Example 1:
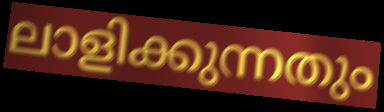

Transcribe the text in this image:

ലാളിക്കുന്നതും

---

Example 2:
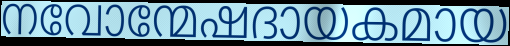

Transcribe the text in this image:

നവോന്മേഷദായകമായ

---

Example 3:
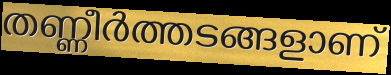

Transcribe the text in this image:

തണ്ണീർത്തടങ്ങളാണ്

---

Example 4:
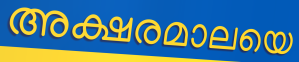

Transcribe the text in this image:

അക്ഷരമാലയെ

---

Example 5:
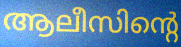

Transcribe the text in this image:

ആലീസിന്റെ